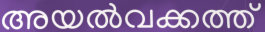
അയൽവക്കത്ത്